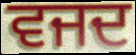
ਵਜਦ